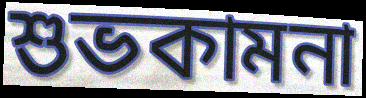
শুভকামনা